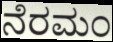
ನೆರಮಂ